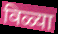
विळ्या